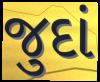
જુદાં